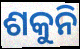
ଶକୁନି